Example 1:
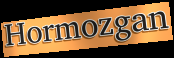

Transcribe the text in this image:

Hormozgan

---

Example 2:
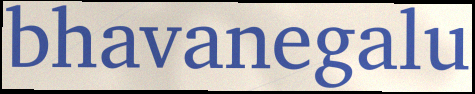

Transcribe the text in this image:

bhavanegalu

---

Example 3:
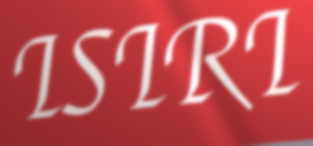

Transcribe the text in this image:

ISIRI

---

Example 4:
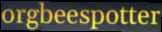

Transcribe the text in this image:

orgbeespotter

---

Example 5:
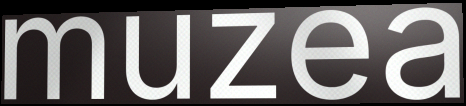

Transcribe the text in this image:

muzea